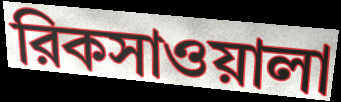
রিকসাওয়ালা